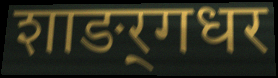
शाङर्गधर